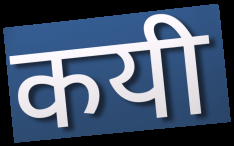
कयी